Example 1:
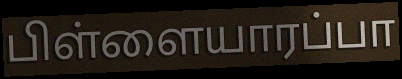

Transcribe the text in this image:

பிள்ளையாரப்பா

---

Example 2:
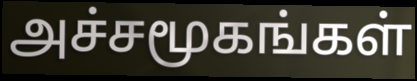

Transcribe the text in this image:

அச்சமூகங்கள்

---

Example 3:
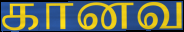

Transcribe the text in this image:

கானவ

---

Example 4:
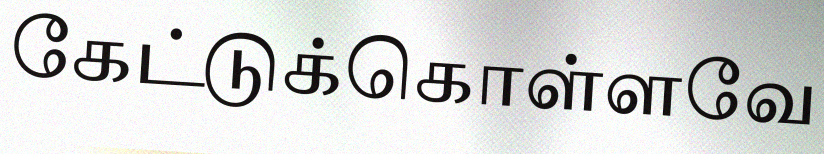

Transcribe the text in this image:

கேட்டுக்கொள்ளவே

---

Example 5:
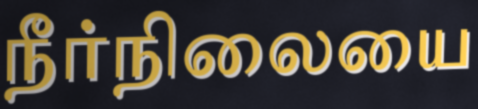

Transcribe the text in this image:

நீர்நிலையை